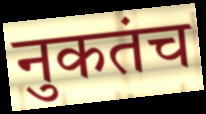
नुकतंच